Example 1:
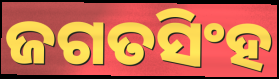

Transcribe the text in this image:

ଜଗତସିଂହ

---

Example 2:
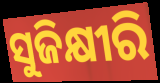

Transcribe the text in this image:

ସୁଜିକ୍ଷୀରି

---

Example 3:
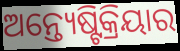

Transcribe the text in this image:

ଅନ୍ତ୍ୟେଷ୍ଟିକ୍ରିୟାର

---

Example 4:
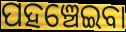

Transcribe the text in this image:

ପହଞ୍ଚେଇବା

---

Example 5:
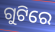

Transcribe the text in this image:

ଗୁଟିରେ